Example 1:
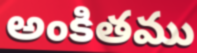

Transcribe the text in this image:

అంకితము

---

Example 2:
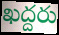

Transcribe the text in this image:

ఖద్దరు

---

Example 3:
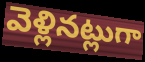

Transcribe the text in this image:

వెళ్లినట్లుగా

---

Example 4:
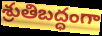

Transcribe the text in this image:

శ్రుతిబద్ధంగా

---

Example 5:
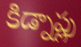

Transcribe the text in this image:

కిడ్నాప్లు